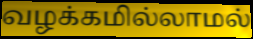
வழக்கமில்லாமல்